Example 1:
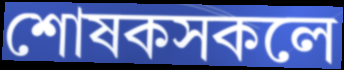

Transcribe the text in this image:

শোষকসকলে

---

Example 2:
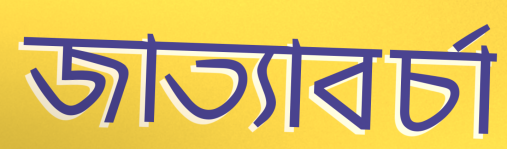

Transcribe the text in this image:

জাত্যাবৰ্চা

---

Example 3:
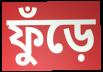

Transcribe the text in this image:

ফুঁড়ে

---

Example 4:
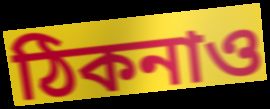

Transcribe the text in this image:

ঠিকনাও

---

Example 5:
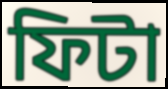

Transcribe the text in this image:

ফিটা